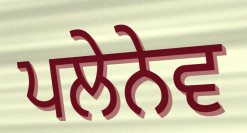
ਪਲੇਨੇਵ